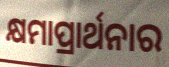
କ୍ଷମାପ୍ରାର୍ଥନାର